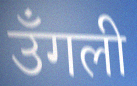
उँगली